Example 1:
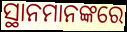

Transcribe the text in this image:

ସ୍ଥାନମାନଙ୍କରେ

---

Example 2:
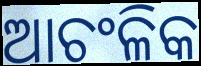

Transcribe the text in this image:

ଆଚଂଳିକ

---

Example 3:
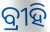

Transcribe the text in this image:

ବ୍ରୀହି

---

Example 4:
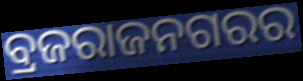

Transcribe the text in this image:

ବ୍ରଜରାଜନଗରର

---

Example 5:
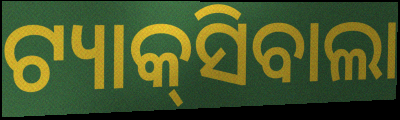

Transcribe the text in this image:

ଟ୍ୟାକ୍‌ସିବାଲା